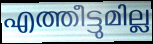
എത്തീട്ടുമില്ല